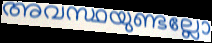
അവസ്ഥയുണ്ടല്ലോ